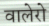
वालेरो